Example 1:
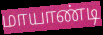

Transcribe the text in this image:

மாயாண்டி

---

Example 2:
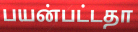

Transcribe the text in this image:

பயன்பட்டதா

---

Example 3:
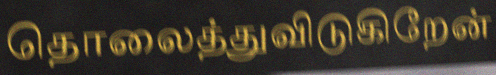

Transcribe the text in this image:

தொலைத்துவிடுகிறேன்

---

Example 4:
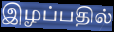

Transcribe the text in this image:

இழப்பதில்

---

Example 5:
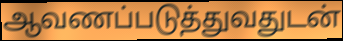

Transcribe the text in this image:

ஆவணப்படுத்துவதுடன்